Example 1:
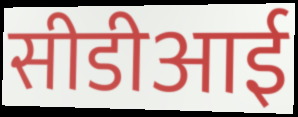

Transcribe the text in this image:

सीडीआई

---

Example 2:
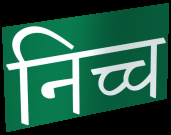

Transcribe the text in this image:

निच्च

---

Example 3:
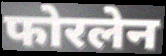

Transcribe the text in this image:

फोरलेन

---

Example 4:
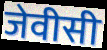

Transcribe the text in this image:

जेवीसी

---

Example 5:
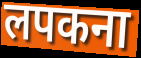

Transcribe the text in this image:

लपकना